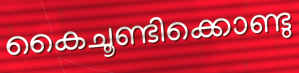
കൈചൂണ്ടിക്കൊണ്ടു